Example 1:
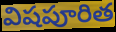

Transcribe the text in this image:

విషపూరిత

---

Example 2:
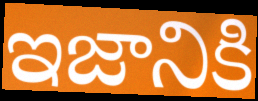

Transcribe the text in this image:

ఇజానికి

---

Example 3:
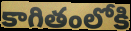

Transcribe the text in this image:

కాగితంలోకి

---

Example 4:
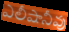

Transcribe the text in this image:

ఎలీషానీవు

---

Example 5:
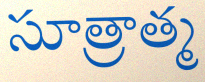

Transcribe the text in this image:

సూత్రాత్మ